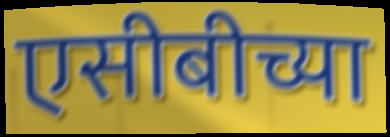
एसीबीच्या